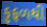
કુફળથી